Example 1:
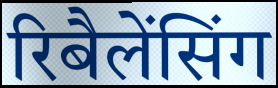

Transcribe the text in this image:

रिबैलेंसिंग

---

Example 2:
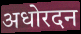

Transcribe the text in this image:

अधोरदन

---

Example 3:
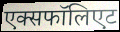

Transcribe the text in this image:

एक्सफॉलिएट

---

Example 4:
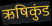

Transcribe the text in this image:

ऋषिकुंड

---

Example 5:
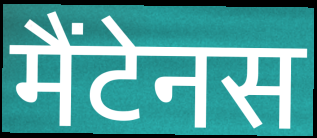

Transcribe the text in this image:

मैंटेनस